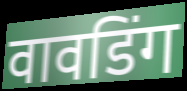
वावडिंग